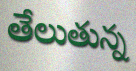
తేలుతున్న